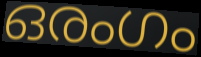
ഒരംഗം